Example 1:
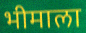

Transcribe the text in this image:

भीमाला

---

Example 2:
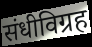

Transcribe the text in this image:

संधीविग्रह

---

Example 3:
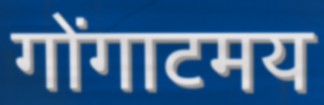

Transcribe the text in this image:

गोंगाटमय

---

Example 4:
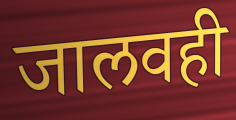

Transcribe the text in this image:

जालवही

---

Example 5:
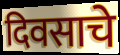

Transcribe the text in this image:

दिवसाचे